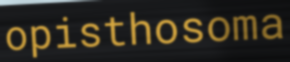
opisthosoma